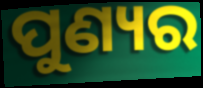
ପୁଣ୍ୟର